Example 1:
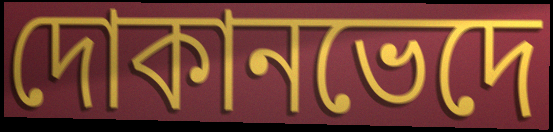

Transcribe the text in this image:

দোকানভেদে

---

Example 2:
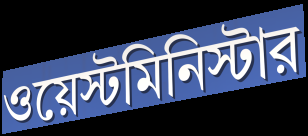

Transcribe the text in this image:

ওয়েস্টমিনিস্টার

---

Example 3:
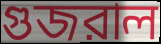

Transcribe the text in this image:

গুজরাল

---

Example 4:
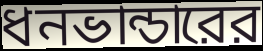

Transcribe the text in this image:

ধনভান্ডারের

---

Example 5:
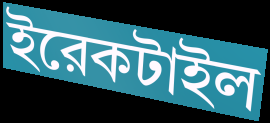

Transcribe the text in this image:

ইরেকটাইল